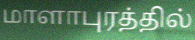
மாளாபுரத்தில்